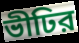
ভীঢির